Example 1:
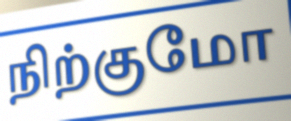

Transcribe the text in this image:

நிற்குமோ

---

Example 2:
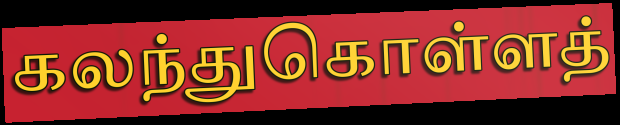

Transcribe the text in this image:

கலந்துகொள்ளத்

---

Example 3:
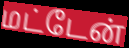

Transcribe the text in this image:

மட்டேன்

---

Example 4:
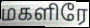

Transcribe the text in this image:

மகளிரே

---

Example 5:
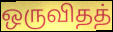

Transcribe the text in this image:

ஒருவிதத்